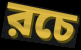
রচে